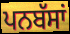
ਪਨਬੱਸਾਂ